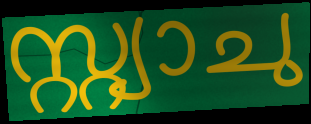
സ്റ്റ്യാചു